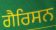
ਗੈਰਿਸਨ